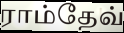
ராம்தேவ்